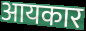
आयकार